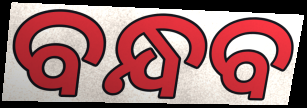
ବନ୍ଧବ